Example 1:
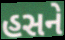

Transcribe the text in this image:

હસને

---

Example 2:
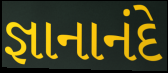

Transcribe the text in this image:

જ્ઞાનાનંદે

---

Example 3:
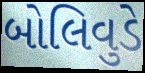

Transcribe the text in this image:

બોલિવુડે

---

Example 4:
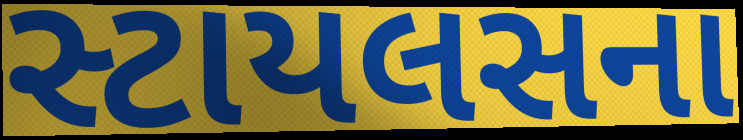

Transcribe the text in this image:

સ્ટાયલસના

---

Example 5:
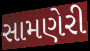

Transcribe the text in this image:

સામણેરી